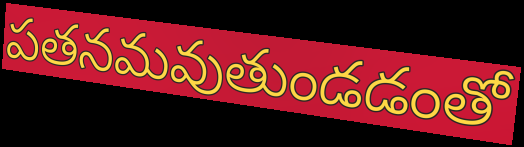
పతనమవుతుండడంతో